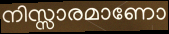
നിസ്സാരമാണോ